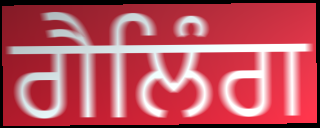
ਗੈਲਿੰਗ